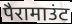
पैरामाउंट